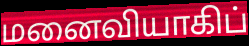
மனைவியாகிப்